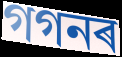
গগনৰ